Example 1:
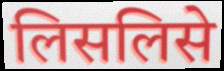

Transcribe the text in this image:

लिसलिसे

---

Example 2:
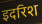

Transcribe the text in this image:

इदरिश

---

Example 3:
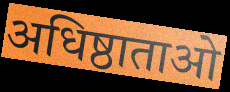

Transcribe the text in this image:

अधिष्ठाताओ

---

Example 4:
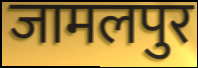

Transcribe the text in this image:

जामलपुर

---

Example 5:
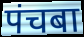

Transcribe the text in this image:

पंचबा